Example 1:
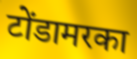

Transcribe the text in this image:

टोंडामरका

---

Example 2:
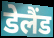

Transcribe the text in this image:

डेलैंड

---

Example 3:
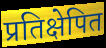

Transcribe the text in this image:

प्रतिक्षेपित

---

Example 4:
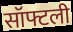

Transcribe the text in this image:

सॉफ्टली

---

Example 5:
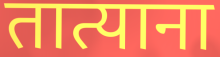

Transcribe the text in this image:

तात्याना